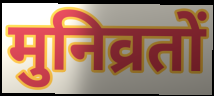
मुनिव्रतों